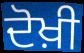
ਦੋਖ਼ੀ